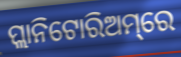
ପ୍ଲାନିଟୋରିଅମ୍‌ରେ